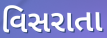
વિસરાતા